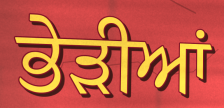
ਭੇੜੀਆਂ